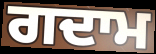
ਗਦਾਮ